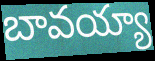
బావయ్యా